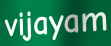
vijayam